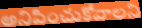
అనిపించుకోవాలని